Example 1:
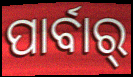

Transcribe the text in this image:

ପାର୍ବାର୍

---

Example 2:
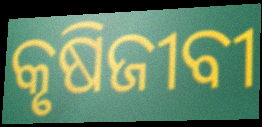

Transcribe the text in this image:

କୃଷିଜୀବୀ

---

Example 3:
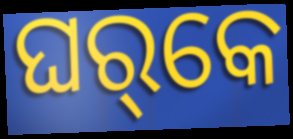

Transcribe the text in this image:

ଘର୍‌କେ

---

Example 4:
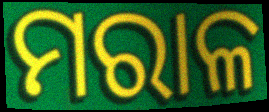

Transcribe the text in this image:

ମରାଳ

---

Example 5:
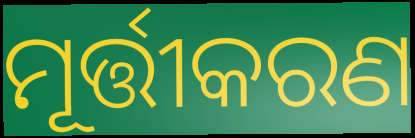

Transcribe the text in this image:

ମୂର୍ତ୍ତୀକରଣ